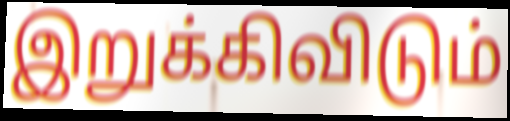
இறுக்கிவிடும்